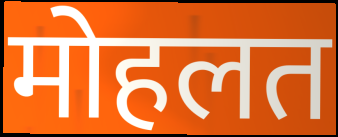
मोहलत